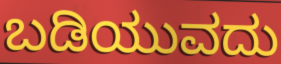
ಬಡಿಯುವದು